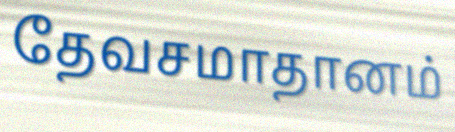
தேவசமாதானம்